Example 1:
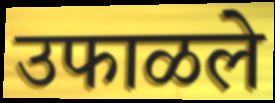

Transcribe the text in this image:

उफाळले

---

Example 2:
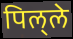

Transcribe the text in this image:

पिल्ले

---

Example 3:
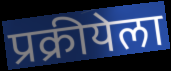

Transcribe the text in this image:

प्रक्रीयेला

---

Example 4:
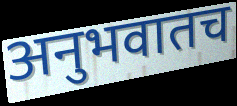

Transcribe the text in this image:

अनुभवातच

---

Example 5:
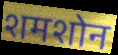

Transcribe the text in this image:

शमशोन